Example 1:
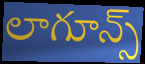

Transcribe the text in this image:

లాగూన్స్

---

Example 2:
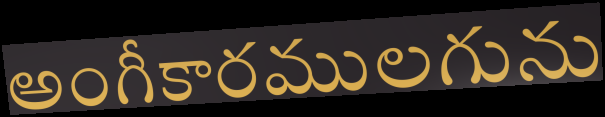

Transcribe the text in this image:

అంగీకారములగును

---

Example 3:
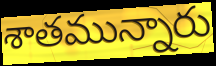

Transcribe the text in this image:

శాతమున్నారు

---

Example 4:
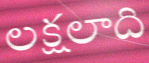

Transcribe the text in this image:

లక్షలాది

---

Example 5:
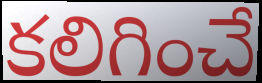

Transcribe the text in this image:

కలిగించే